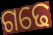
ଗଢେ